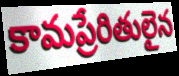
కామప్రేరితులైన